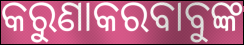
କରୁଣାକରବାବୁଙ୍କ